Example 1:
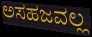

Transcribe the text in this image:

ಅಸಹಜವಲ್ಲ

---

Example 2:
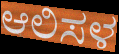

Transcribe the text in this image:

ಆಲಿಸಳ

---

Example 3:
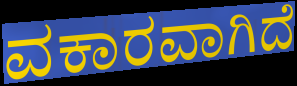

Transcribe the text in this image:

ವಕಾರವಾಗಿದೆ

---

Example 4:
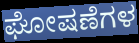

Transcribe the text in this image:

ಘೋಷಣೆಗಳ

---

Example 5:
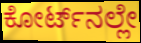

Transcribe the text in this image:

ಕೋರ್ಟ್‌ನಲ್ಲೇ